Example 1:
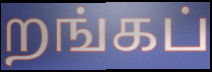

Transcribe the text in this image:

றங்கப்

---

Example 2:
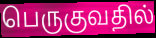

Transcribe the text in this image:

பெருகுவதில்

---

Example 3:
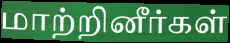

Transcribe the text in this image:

மாற்றினீர்கள்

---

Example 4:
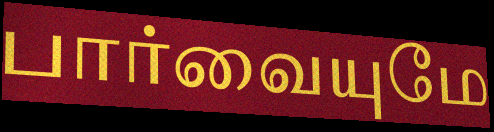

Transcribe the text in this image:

பார்வையுமே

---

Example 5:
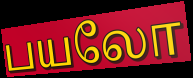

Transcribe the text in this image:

பயலோ